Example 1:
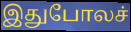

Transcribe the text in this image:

இதுபோலச்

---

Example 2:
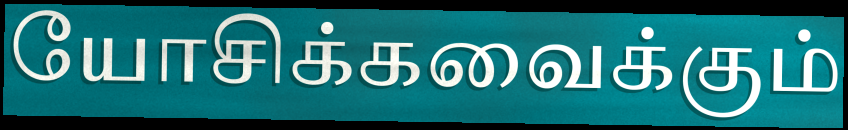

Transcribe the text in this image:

யோசிக்கவைக்கும்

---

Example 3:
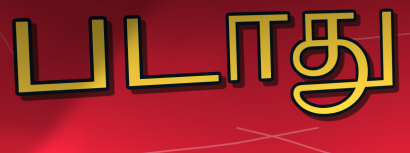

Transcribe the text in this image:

படாது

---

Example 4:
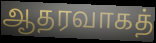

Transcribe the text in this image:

ஆதரவாகத்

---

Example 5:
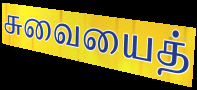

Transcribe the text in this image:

சுவையைத்